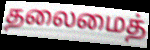
தலைமைத்